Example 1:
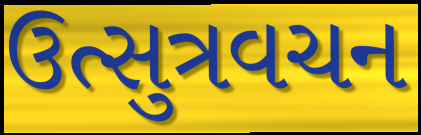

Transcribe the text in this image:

ઉત્સુત્રવચન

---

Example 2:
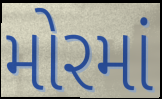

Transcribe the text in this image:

મોરમાં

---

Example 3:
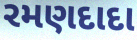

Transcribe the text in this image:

રમણદાદા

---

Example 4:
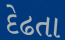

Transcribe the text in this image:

દેઢતા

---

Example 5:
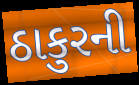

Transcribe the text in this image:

ઠાકુરની